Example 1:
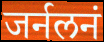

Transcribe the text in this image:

जर्नलनं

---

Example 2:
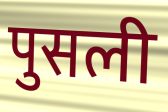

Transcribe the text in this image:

पुसली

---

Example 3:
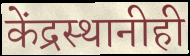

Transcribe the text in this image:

केंद्रस्थानीही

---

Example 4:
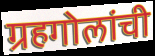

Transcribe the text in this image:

ग्रहगोलांची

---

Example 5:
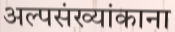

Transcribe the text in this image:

अल्पसंख्यांकाना